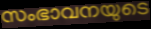
സംഭാവനയുടെ